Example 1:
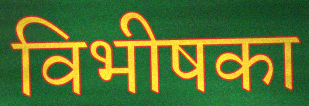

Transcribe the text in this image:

विभीषका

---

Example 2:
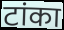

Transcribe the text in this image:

टांका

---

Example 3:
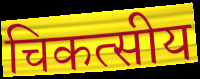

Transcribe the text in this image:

चिकत्सीय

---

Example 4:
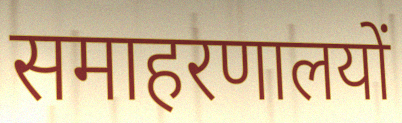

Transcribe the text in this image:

समाहरणालयों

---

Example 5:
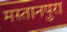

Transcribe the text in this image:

मस्तानपुरा